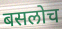
बसलोच